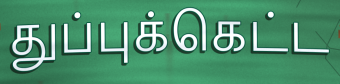
துப்புக்கெட்ட